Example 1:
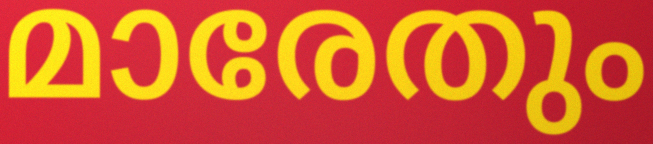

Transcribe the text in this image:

മാരേതും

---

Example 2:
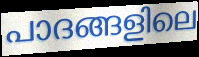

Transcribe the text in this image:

പാദങ്ങളിലെ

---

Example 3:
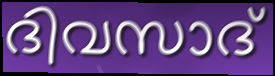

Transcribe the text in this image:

ദിവസാദ്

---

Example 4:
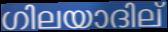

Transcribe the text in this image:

ഗിലയാദില്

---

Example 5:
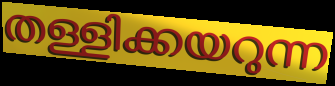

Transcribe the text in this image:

തള്ളിക്കയറുന്ന